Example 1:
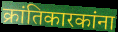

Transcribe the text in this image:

क्रांतिकारकांना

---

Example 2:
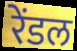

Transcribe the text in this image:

रेंडल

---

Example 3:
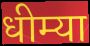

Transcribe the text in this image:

धीम्या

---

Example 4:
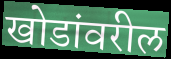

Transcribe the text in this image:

खोडांवरील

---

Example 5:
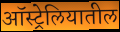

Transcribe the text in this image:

ऑस्ट्रेलियातील